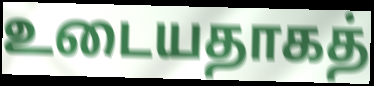
உடையதாகத்